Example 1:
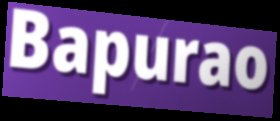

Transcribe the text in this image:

Bapurao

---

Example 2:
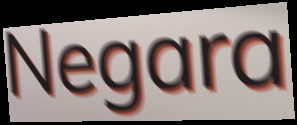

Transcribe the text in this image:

Negara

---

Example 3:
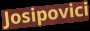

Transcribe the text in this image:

Josipovici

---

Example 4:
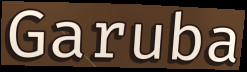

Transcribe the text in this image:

Garuba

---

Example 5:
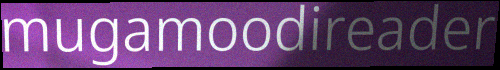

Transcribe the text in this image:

mugamoodireader